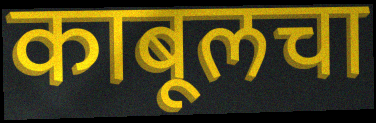
काबूलचा